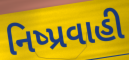
નિષ્પ્રવાહી